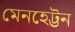
মেনহেট্টন